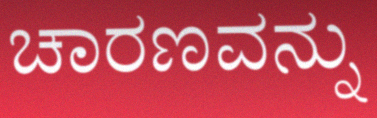
ಚಾರಣವನ್ನು